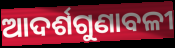
ଆଦର୍ଶଗୁଣାବଳୀ